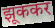
झूककर